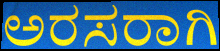
ಅರಸರಾಗಿ